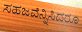
ಸಹಜವೆನ್ನಿಸಿದರೂ